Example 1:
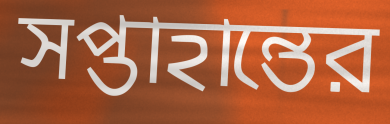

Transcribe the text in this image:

সপ্তাহান্তের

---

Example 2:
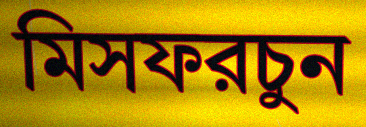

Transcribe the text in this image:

মিসফরচুন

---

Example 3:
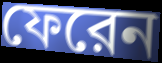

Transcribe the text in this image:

ফেরেন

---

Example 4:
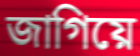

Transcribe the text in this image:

জাগিয়ে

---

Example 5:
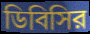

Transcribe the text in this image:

ডিবিসির